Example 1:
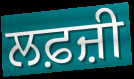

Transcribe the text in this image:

ਲਫ਼ਜ਼ੀ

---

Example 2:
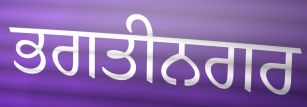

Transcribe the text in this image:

ਭਗਤੀਨਗਰ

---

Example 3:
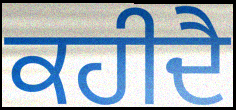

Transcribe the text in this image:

ਕਹੀਦੈ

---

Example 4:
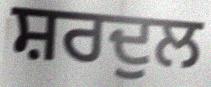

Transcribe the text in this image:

ਸ਼ਰਦੁਲ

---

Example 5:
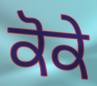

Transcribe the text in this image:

ਕੋਕੇ